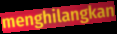
menghilangkan